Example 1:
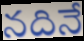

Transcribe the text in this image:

నదినే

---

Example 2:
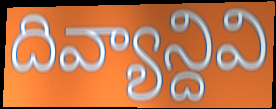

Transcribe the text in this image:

దివ్యాన్దివి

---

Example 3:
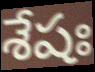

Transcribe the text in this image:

శేషః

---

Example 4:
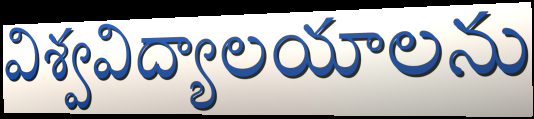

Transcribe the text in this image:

విశ్వవిద్యాలయాలను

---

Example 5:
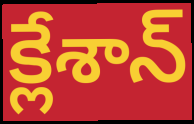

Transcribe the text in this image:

క్లేశాన్